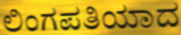
ಲಿಂಗಪತಿಯಾದ